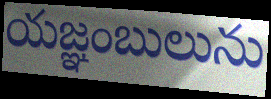
యజ్ఞంబులును